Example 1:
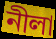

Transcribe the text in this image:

নীলা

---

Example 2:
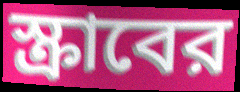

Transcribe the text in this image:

স্ক্রাবের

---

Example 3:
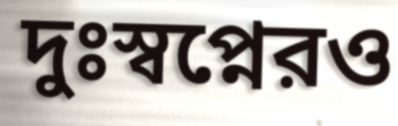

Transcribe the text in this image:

দুঃস্বপ্নেরও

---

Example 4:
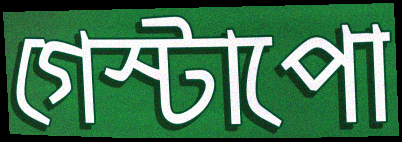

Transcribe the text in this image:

গেস্টাপো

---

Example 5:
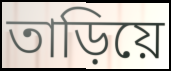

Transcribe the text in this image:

তাড়িয়ে